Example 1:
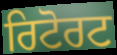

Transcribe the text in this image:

ਰਿਟੋਰਟ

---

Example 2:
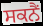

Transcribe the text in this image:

ਸਕਨੈਂ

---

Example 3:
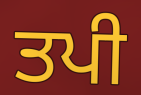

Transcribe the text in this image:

ਤਪੀ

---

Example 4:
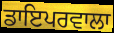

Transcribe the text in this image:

ਡਾਇਪਰਵਾਲਾ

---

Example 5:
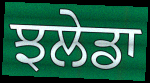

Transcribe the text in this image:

ਝਲੇਡਾ